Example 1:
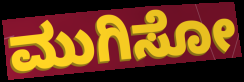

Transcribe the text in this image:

ಮುಗಿಸೋ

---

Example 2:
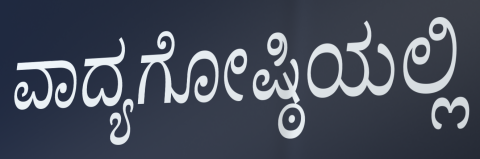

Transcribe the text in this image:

ವಾದ್ಯಗೋಷ್ಠಿಯಲ್ಲಿ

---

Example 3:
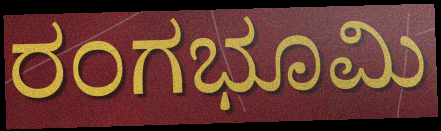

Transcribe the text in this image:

ರಂಗಭೂಮಿ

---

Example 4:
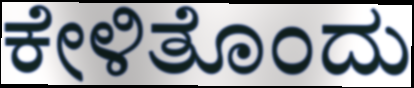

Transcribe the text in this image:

ಕೇಳಿತೊಂದು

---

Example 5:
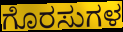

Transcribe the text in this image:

ಗೊರಸುಗಳ